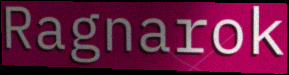
Ragnarok